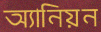
অ্যানিয়ন